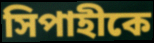
সিপাহীকে